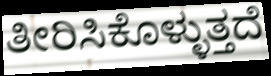
ತೀರಿಸಿಕೊಳ್ಳುತ್ತದೆ